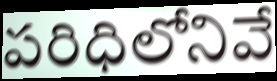
పరిధిలోనివే